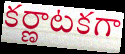
కర్ణాటకగా